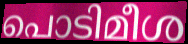
പൊടിമീശ